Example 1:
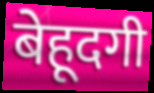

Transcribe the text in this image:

बेहूदगी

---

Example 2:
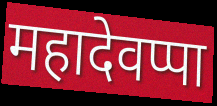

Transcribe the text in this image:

महादेवप्पा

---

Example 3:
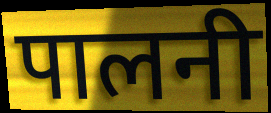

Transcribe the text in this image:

पालनी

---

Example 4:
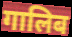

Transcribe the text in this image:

गालिब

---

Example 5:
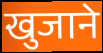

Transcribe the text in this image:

खुजाने